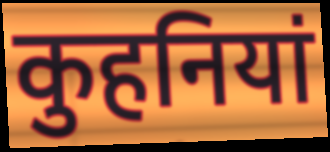
कुहनियां